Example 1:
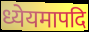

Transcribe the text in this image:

ध्येयमापदि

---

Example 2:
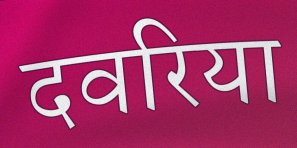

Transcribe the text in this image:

दवरिया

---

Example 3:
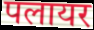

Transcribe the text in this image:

पलायर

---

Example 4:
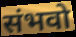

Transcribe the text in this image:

संभवो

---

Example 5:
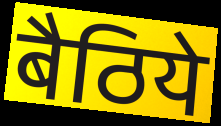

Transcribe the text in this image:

बैठिये